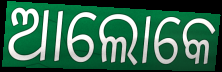
ଆଲୋକେ